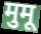
मुमू